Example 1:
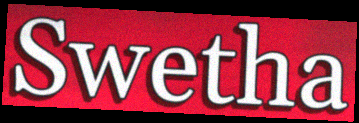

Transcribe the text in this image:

Swetha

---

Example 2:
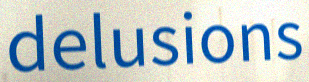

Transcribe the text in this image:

delusions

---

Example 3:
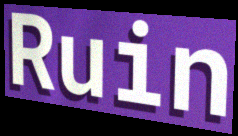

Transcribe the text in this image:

Ruin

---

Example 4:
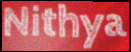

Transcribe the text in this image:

Nithya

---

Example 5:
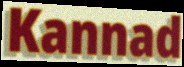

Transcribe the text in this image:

Kannad